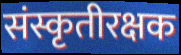
संस्कृतीरक्षक